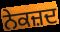
ਨੇਕਜ਼ਦ